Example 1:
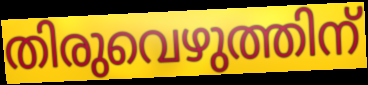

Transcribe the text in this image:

തിരുവെഴുത്തിന്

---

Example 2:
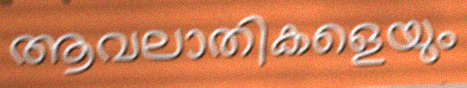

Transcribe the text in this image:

ആവലാതികളെയും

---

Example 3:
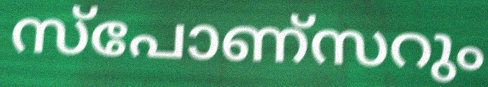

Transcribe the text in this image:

സ്പോണ്സറും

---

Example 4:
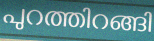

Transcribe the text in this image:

പുറത്തിറങ്ങി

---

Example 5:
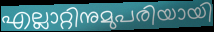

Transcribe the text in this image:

എല്ലാറ്റിനുമുപരിയായി